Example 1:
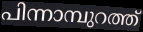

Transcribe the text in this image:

പിന്നാമ്പുറത്ത്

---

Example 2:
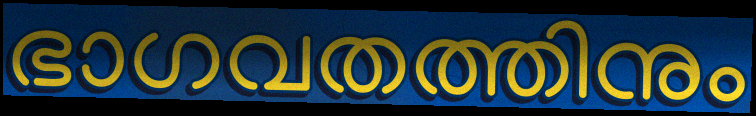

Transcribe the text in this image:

ഭാഗവതത്തിനും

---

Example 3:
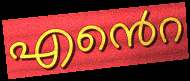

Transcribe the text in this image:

എൻെറ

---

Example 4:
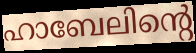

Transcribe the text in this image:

ഹാബേലിന്റെ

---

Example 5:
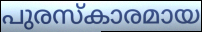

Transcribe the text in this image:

പുരസ്കാരമായ